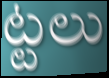
ట్టలు